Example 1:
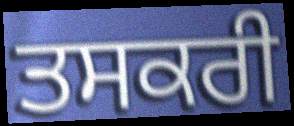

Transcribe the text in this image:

ਤਸਕਰੀ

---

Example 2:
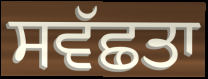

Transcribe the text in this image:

ਸਵੱਛਤਾ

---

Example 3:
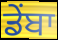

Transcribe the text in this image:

ਡੇਂਬਾ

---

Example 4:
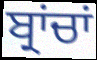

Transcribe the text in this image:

ਬ੍ਰਾਂਚਾਂ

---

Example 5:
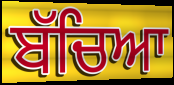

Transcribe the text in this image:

ਬੱਚਿਆ